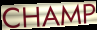
CHAMP